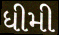
ધીમી